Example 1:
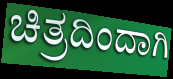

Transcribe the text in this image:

ಚಿತ್ರದಿಂದಾಗಿ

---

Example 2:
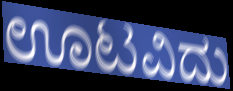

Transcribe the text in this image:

ಊಟವಿದು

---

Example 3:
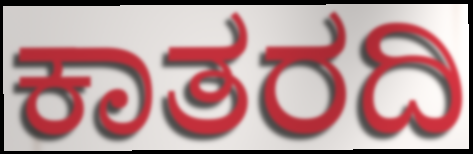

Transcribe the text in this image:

ಕಾತರದಿ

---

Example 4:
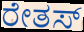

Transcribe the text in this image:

ರೇತಸ್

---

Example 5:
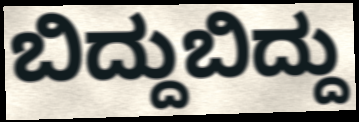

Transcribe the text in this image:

ಬಿದ್ದುಬಿದ್ದು